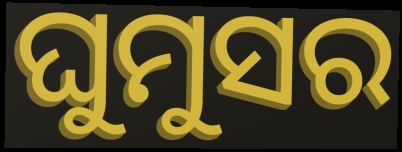
ଘୁମୁସର